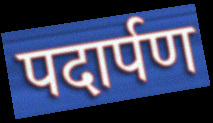
पदार्पण